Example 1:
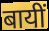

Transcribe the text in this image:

बायीं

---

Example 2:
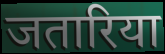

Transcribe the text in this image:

जतारिया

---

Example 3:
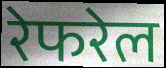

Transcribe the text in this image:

रेफरेल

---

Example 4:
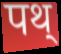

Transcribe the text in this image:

पथ्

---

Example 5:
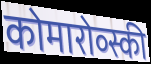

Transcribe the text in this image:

कोमारोव्स्की